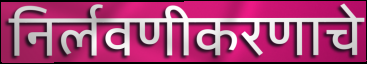
निर्लवणीकरणाचे